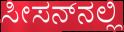
ಸೀಸನ್‌ನಲ್ಲಿ